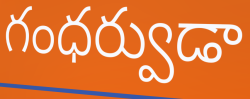
గంధర్వుడా